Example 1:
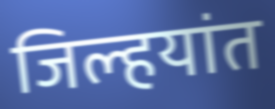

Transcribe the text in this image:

जिल्हयांत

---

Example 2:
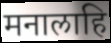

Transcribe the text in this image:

मनालाहि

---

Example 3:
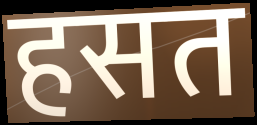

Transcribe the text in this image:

हसत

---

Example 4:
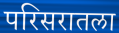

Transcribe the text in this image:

परिसरातला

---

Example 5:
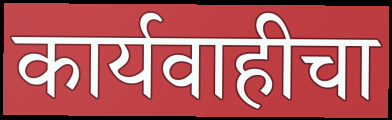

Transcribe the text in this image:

कार्यवाहीचा